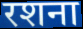
रशना